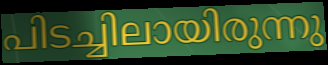
പിടച്ചിലായിരുന്നു